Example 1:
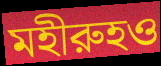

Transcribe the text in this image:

মহীরুহও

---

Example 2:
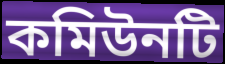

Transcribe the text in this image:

কমিউনটি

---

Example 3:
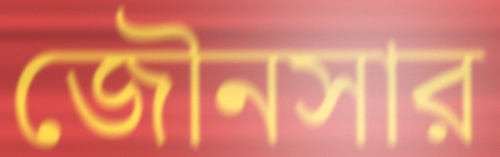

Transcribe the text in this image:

জৌনসার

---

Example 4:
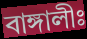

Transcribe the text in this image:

বাঙ্গালীঃ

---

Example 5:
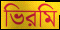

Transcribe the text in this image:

ভিরমি